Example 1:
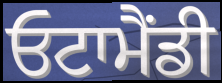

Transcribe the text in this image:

ਓਟਾਮੈਂਡੀ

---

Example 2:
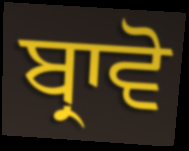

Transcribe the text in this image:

ਬ੍ਰਾਵੋ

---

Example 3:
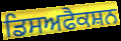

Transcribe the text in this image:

ਡਿਸਅਫੈਕਸ਼ਨ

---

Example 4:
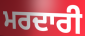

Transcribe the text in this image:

ਮਰਦਾਰੀ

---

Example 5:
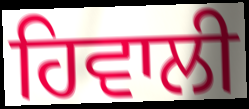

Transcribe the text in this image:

ਹਿਵਾਲੀ